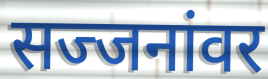
सज्जनांवर